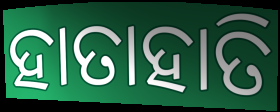
ହାତାହାତି